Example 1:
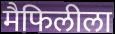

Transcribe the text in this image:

मैफिलीला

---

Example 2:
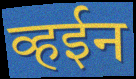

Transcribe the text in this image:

व्हईन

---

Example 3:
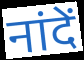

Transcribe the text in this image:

नांदें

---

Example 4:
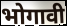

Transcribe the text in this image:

भोगावी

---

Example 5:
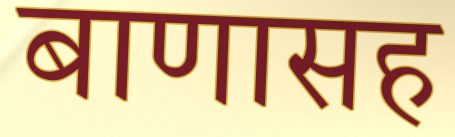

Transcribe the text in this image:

बाणासह